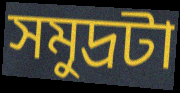
সমুদ্রটা